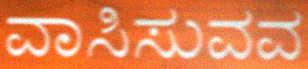
ವಾಸಿಸುವವ